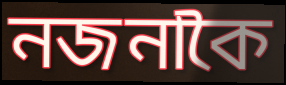
নজনাকৈ